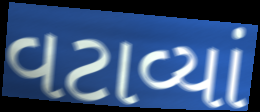
વટાવ્યાં